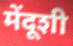
मेंदूशी